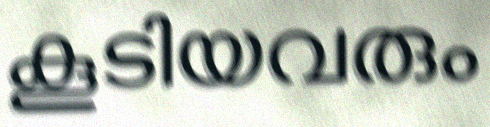
കൂടിയവരും